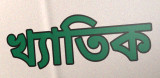
খ্যাতিক